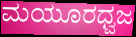
ಮಯೂರಧ್ವಜ